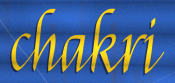
chakri